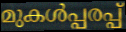
മുകൾപ്പരപ്പ്